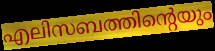
എലിസബത്തിന്റെയും